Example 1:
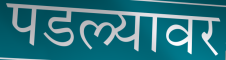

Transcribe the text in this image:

पडल्यावर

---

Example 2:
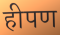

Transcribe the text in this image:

हीपण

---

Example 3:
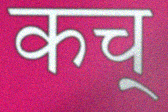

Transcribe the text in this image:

कच्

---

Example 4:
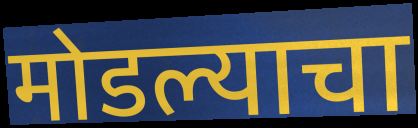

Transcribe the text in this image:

मोडल्याचा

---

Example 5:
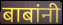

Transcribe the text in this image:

बाबांनी